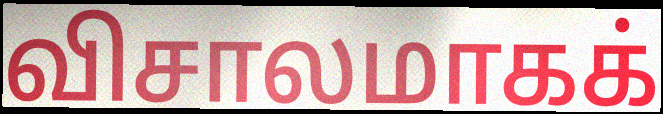
விசாலமாகக்